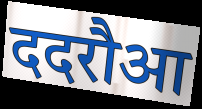
ददरौआ